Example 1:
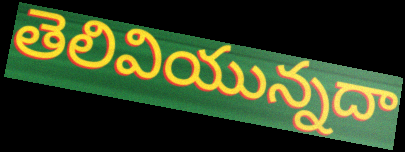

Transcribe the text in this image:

తెలివియున్నదా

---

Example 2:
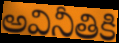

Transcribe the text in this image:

అవినీతికి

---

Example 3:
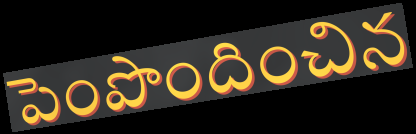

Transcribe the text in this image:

పెంపొందించిన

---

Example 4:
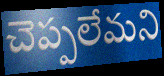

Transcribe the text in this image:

చెప్పలేమని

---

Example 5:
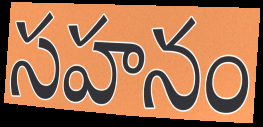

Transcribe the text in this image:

సహనం